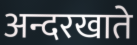
अन्दरखाते